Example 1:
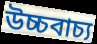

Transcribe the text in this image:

উচ্চবাচ্য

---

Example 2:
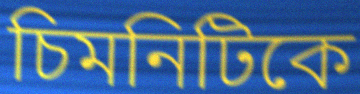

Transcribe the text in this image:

চিমনিটিকে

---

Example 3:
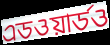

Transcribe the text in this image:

এডওয়ার্ডও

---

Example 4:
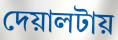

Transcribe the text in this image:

দেয়ালটায়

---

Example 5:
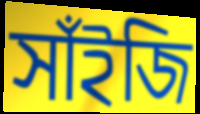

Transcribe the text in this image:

সাঁইজি